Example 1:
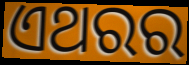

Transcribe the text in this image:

ଏଥରର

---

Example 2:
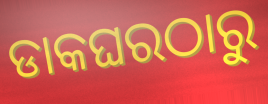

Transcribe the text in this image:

ଡାକଘରଠାରୁ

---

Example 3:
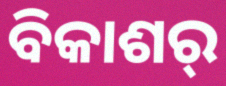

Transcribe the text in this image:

ବିକାଶର୍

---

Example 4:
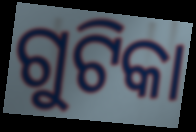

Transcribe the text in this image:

ଗୁଟିକା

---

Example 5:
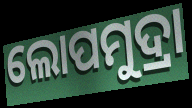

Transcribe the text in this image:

ଲୋପମୁଦ୍ରା